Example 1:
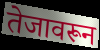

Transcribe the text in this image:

तेजावरून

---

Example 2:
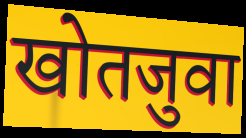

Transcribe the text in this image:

खोतजुवा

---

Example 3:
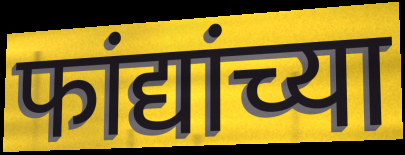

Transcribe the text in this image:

फांद्यांच्या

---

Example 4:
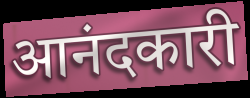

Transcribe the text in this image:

आनंदकारी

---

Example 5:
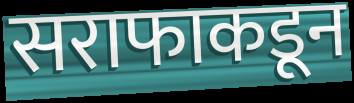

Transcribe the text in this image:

सराफाकडून